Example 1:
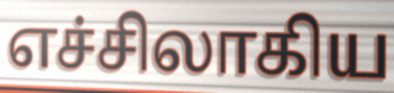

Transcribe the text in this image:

எச்சிலாகிய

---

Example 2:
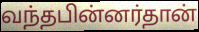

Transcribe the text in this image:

வந்தபின்னர்தான்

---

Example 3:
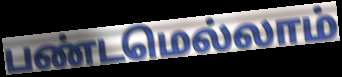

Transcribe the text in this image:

பண்டமெல்லாம்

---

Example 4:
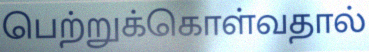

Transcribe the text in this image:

பெற்றுக்கொள்வதால்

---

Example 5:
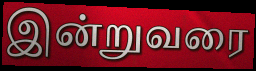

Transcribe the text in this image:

இன்றுவரை